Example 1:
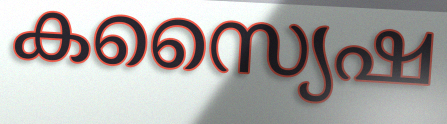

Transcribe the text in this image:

കസ്യൈഷ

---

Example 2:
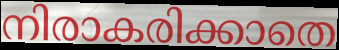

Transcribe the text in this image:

നിരാകരിക്കാതെ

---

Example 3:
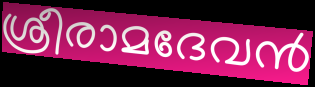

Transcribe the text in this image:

ശ്രീരാമദേവൻ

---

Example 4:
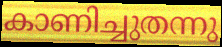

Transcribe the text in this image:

കാണിച്ചുതന്നു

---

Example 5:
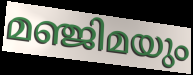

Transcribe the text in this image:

മഞ്ജിമയും